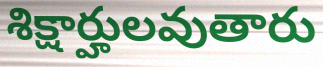
శిక్షార్హులవుతారు